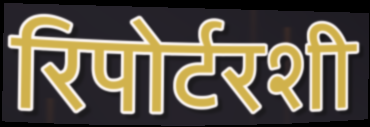
रिपोर्टरशी